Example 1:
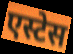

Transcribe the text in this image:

एस्टेस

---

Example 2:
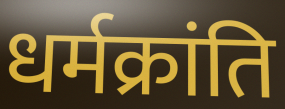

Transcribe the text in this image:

धर्मक्रांति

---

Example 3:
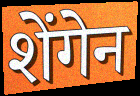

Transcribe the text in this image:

शेंगेन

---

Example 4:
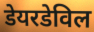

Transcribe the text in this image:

डेयरडेविल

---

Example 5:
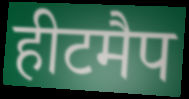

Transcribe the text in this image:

हीटमैप